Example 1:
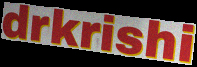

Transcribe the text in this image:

drkrishi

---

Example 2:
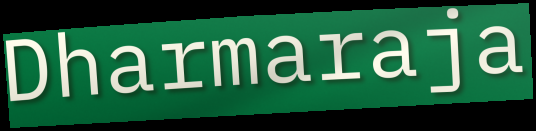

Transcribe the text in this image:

Dharmaraja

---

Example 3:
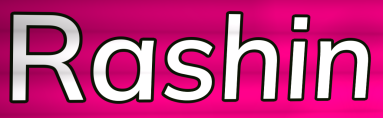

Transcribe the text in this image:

Rashin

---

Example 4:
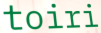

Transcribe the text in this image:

toiri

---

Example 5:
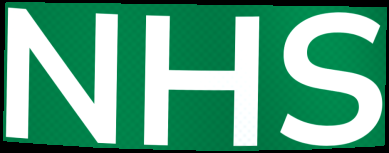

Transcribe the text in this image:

NHS